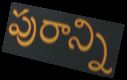
పురాన్ని